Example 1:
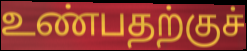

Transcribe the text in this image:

உண்பதற்குச்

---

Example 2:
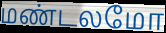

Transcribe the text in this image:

மண்டலமோ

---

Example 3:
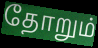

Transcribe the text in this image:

தோறும்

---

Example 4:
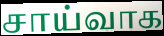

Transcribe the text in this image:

சாய்வாக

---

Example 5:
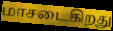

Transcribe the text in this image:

மாசடைகிறது